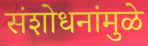
संशोधनांमुळे